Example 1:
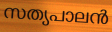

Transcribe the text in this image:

സത്യപാലൻ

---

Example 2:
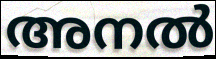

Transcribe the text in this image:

അനൽ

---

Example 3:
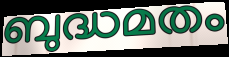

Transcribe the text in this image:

ബുദ്ധമതം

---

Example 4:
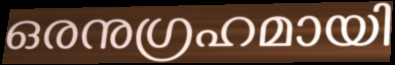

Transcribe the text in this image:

ഒരനുഗ്രഹമായി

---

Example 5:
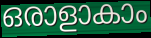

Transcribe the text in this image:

ഒരാളാകാം